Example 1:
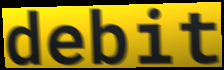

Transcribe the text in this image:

debit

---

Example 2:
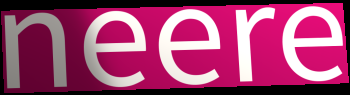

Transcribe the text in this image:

neere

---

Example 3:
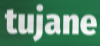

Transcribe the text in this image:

tujane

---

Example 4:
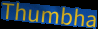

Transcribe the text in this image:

Thumbha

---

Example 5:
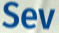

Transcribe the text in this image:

Sev